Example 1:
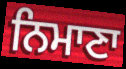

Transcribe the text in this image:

ਨਿਮਾਣਾ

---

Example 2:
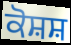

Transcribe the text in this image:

ਕੋਸ਼ਸ਼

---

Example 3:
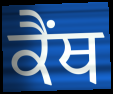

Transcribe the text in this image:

ਕੈਂਥ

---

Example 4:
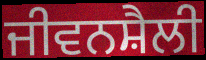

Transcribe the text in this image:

ਜੀਵਨਸ਼ੈਲੀ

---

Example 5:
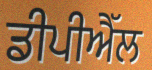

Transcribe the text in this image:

ਡੀਪੀਐੱਲ